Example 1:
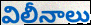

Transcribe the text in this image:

విలీనాలు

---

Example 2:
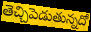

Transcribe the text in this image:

తెచ్చిపెడుతున్నదో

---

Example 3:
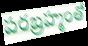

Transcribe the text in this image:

పరబ్రహ్మంతో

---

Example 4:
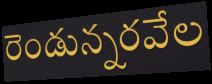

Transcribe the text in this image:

రెండున్నరవేల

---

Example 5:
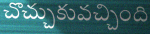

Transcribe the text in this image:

చొచ్చుకువచ్చింది